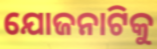
ଯୋଜନାଟିକୁ